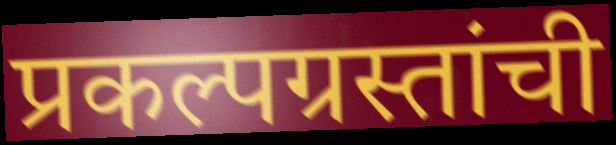
प्रकल्पग्रस्तांची